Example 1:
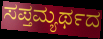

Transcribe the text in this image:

ಸಪ್ತಮ್ಯರ್ಥದ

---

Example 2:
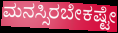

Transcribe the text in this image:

ಮನಸ್ಸಿರಬೇಕಷ್ಟೇ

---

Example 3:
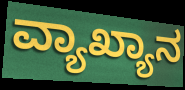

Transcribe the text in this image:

ವ್ಯಾಖ್ಯಾನ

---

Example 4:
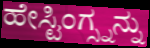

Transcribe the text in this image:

ಹೇಸ್ಟಿಂಗ್ಸ್ನನ್ನು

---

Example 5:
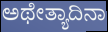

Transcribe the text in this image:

ಅಥೇತ್ಯಾದಿನಾ